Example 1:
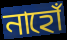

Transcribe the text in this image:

নাহোঁ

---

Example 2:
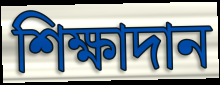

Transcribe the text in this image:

শিক্ষাদান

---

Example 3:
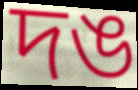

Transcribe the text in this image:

দঙ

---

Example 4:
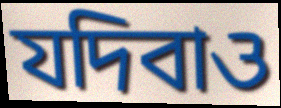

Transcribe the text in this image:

যদিবাও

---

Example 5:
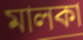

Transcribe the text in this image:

মালকা